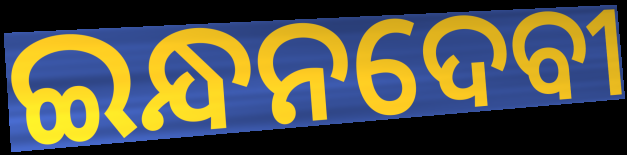
ଇନ୍ଧନଦେବୀ